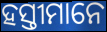
ହସ୍ତୀମାନେ